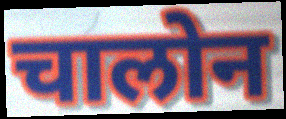
चालोन